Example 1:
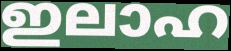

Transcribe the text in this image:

ഇലാഹ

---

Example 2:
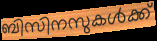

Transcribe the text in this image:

ബിസിനസുകൾക്ക്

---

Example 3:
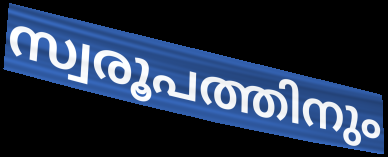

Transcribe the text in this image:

സ്വരൂപത്തിനും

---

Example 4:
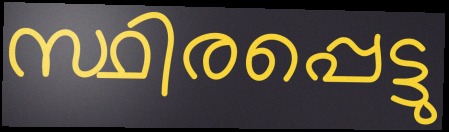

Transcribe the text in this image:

സ്ഥിരപ്പെട്ടു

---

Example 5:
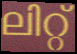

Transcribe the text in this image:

ലിറ്റ്